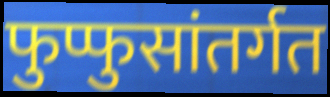
फुप्फुसांतर्गत